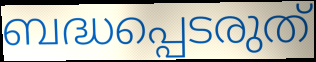
ബദ്ധപ്പെടരുത്